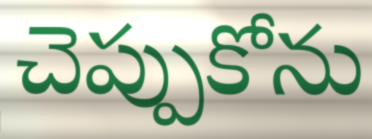
చెప్పుకోను